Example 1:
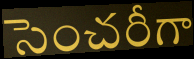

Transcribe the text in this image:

సెంచరీగా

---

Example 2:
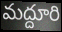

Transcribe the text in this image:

మద్దూరి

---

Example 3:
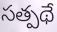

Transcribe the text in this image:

సత్పథే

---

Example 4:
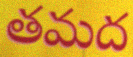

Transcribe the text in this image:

తమద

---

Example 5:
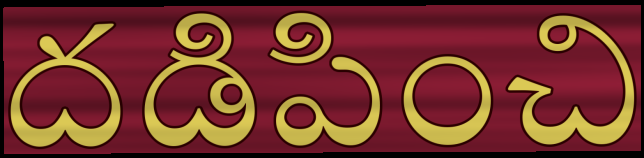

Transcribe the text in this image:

దడిపించి